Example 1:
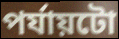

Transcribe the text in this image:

পৰ্যায়টো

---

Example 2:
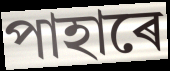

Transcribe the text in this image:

পাহাৰে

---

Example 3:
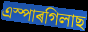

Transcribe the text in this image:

এস্পাৰগিলাছ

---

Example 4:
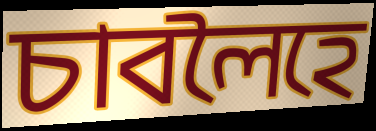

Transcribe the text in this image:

চাবলৈহে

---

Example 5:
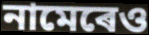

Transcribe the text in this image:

নামেৰেও